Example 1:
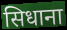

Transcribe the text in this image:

सिधाना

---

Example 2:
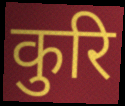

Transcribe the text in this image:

कुरि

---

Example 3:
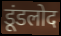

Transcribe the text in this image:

डूंडलोद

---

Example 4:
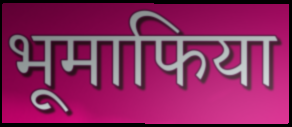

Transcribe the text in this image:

भूमाफिया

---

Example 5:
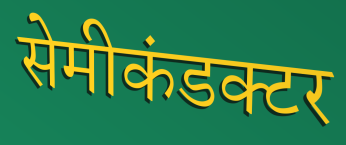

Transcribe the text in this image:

सेमीकंडक्टर